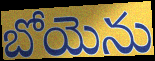
బోయెను